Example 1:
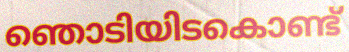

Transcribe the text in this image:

ഞൊടിയിടകൊണ്ട്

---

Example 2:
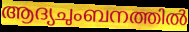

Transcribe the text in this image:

ആദ്യചുംബനത്തിൽ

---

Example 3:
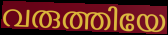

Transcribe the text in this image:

വരുത്തിയേ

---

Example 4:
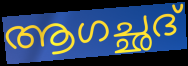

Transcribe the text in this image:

ആഗച്ഛദ്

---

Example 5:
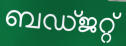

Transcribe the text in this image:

ബഡ്ജറ്റ്